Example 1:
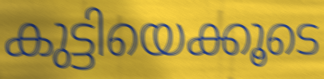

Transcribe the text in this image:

കുട്ടിയെക്കൂടെ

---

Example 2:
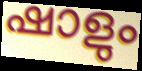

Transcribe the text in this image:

ഷാളും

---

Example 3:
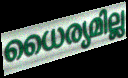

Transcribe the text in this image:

ധൈര്യമില്ല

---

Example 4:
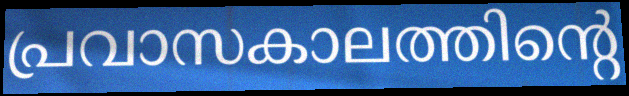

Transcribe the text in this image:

പ്രവാസകാലത്തിന്റെ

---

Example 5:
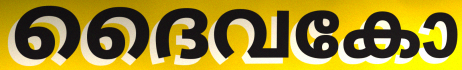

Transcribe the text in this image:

ദൈവകോ